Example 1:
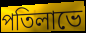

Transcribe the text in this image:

পতিলাভে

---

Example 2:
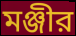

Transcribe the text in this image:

মঞ্জীর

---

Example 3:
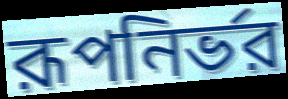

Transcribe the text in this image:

রূপনির্ভর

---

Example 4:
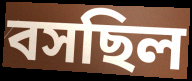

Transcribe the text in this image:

বসছিল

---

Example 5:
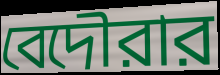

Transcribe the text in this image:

বেদৌরার